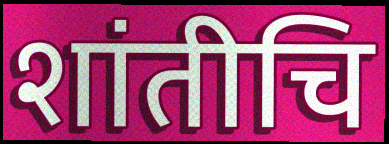
शांतीचि